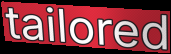
tailored